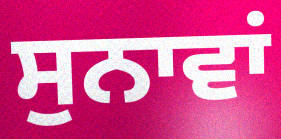
ਸੁਨਾਵਾਂ